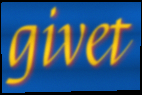
givet